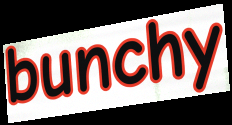
bunchy